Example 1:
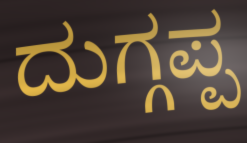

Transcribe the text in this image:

ದುಗ್ಗಪ್ಪ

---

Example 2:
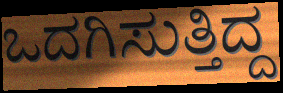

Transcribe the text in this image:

ಒದಗಿಸುತ್ತಿದ್ದ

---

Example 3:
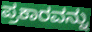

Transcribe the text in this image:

ಪ್ರಕಾರವನ್ನು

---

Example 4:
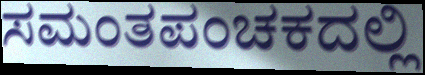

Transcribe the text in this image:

ಸಮಂತಪಂಚಕದಲ್ಲಿ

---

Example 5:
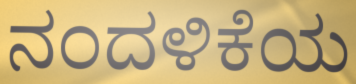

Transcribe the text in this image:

ನಂದಳಿಕೆಯ